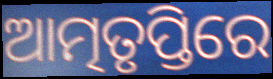
ଆତ୍ମତୃପ୍ତିରେ